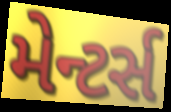
મેન્ટર્સ